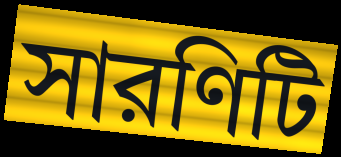
সারণিটি